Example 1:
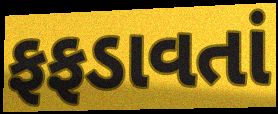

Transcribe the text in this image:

ફફડાવતાં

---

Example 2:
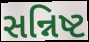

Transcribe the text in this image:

સન્નિષ્ટ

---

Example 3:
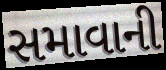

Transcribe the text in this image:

સમાવાની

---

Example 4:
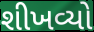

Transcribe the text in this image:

શીખવ્યો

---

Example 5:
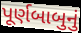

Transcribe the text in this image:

પૂર્ણબાબુનું